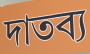
দাতব্য